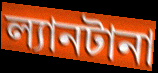
ল্যানটানা